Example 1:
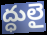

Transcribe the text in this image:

ద్ధులై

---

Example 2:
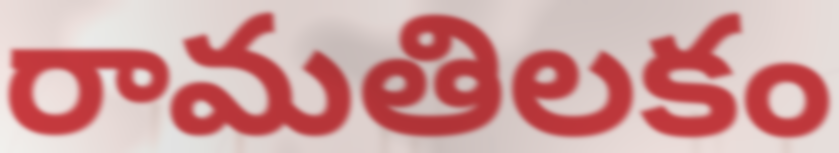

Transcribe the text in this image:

రామతిలకం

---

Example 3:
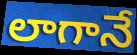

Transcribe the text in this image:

లాగానే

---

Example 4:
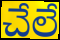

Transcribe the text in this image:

చేలే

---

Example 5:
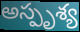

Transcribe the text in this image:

అస్పృశ్య